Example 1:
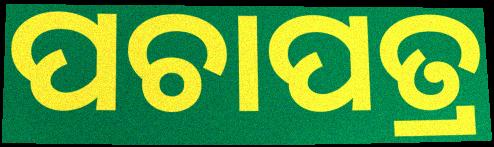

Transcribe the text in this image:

ପଚାପତ୍ର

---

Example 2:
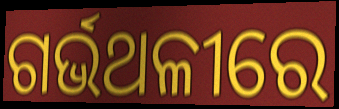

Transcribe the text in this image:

ଗର୍ଭଥଳୀରେ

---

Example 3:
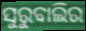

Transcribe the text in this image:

ସୁରୁବାଲିର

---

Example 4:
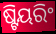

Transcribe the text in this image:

ଷ୍ଟିୟରିଂ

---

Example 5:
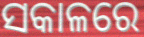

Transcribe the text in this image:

ସକାଳରେ